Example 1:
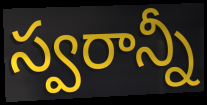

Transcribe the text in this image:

స్వరాన్నీ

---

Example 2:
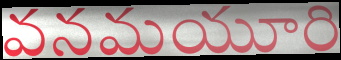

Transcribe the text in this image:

వనమయూరి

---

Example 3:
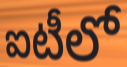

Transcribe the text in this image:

ఐటీలో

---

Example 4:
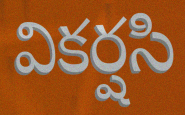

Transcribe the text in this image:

వికర్షసి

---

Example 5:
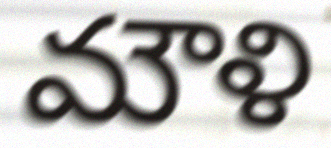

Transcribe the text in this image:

మౌళి